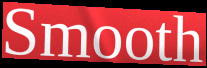
Smooth